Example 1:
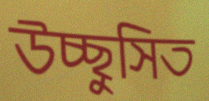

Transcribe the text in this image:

উচ্ছুসিত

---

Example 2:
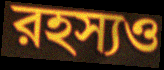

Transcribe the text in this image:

রহস্যও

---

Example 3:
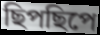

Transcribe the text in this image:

ছিপছিপে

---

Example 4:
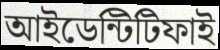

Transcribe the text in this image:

আইডেন্টিটিফাই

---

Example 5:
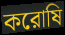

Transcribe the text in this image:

করোষি